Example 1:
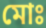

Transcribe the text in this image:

মোঃ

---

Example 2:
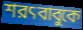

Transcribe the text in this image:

শরৎবাবুকে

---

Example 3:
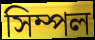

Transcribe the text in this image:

সিম্পল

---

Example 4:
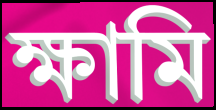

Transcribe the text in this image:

ক্ষামি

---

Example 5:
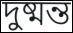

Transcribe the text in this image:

দুষ্মন্ত